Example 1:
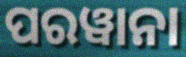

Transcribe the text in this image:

ପରୱାନା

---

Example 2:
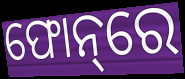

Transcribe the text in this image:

ଫୋନ୍‌ରେ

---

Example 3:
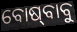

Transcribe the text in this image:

ବୋଷ୍‍ବାବୁ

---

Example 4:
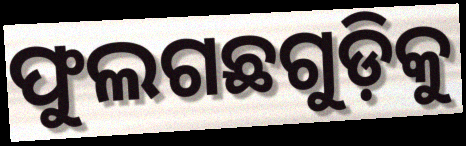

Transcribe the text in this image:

ଫୁଲଗଛଗୁଡ଼ିକୁ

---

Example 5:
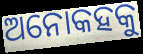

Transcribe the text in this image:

ଅନୋକହକୁ